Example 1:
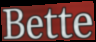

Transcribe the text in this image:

Bette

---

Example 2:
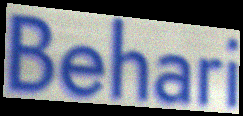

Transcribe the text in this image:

Behari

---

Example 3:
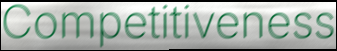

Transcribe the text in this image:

Competitiveness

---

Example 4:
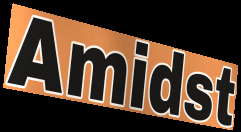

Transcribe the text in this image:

Amidst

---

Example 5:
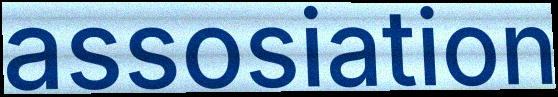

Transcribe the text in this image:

assosiation